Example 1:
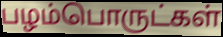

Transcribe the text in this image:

பழம்பொருட்கள்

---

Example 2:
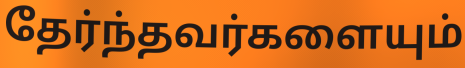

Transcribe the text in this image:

தேர்ந்தவர்களையும்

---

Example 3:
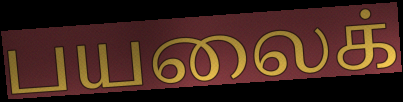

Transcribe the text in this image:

பயலைக்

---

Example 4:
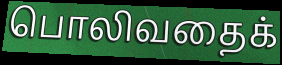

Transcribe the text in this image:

பொலிவதைக்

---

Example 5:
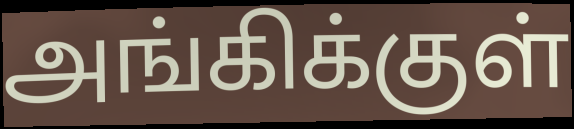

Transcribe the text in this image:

அங்கிக்குள்